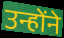
उन्‍होंने